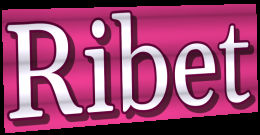
Ribet